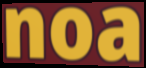
noa